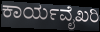
ಕಾರ್ಯವೈಖರಿ